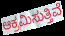
ಆಕ್ರಮಿಸುತ್ತಿವೆ